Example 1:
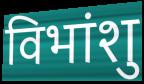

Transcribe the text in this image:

विभांशु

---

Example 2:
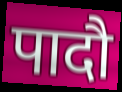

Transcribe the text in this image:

पादौ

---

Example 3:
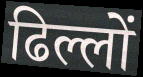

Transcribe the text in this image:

ढिल्लों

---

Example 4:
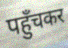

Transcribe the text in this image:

पहुँचकर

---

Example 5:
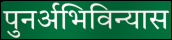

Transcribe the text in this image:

पुनर्अभिविन्यास